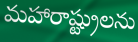
మహారాష్ట్రులను